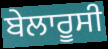
ਬੇਲਾਰੂਸੀ